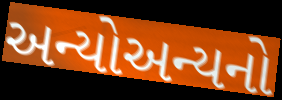
અન્યોઅન્યનો